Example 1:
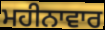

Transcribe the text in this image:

ਮਹੀਨਾਵਾਰ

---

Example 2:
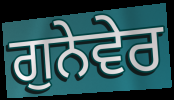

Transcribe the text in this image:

ਗੁਨੇਵੇਰ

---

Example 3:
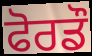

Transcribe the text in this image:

ਫੋਰਡੌ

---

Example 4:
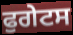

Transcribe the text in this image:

ਫੁਗੇਟਸ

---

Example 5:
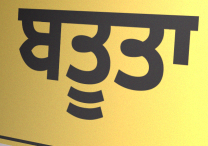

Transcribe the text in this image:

ਬਤੂਤਾ